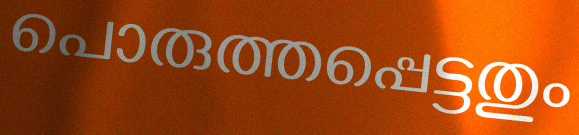
പൊരുത്തപ്പെട്ടതും